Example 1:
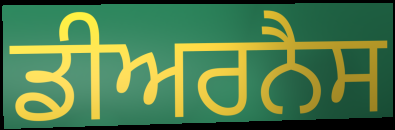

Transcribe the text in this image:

ਡੀਅਰਨੈਸ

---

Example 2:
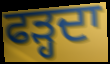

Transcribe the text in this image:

ਫੜ੍ਹਦਾ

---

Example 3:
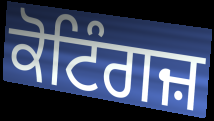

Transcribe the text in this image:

ਕੋਟਿੰਗਜ਼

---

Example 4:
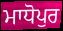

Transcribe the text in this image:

ਮਾਧੋਪੁਰ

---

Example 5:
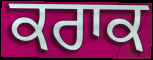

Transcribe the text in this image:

ਕਰਾਕ